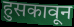
हुसकावून